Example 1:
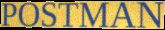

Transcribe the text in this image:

POSTMAN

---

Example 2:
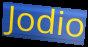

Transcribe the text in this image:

Jodio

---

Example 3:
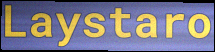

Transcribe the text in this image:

Laystaro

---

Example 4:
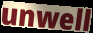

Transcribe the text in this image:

unwell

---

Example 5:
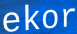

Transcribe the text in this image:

ekor